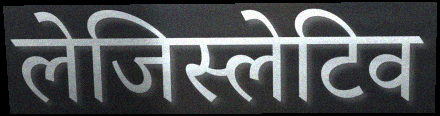
लेजिस्लेटिव